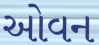
ઓવન